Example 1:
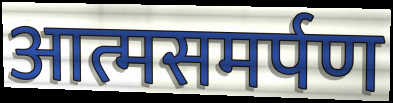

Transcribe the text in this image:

आत्‍मसमर्पण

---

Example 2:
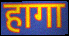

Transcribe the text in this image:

हागा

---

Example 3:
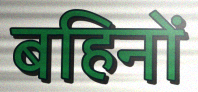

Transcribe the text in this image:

बहिनों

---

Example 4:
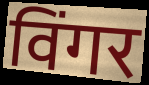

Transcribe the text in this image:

विंगर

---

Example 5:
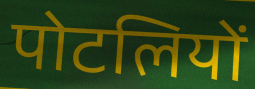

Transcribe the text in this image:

पोटलियों